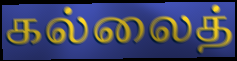
கல்லைத்